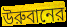
উরুবানের